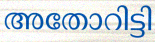
അതോറിട്ടി